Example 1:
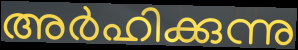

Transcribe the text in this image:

അർഹിക്കുന്നു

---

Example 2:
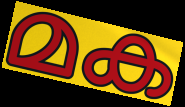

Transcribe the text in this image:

മക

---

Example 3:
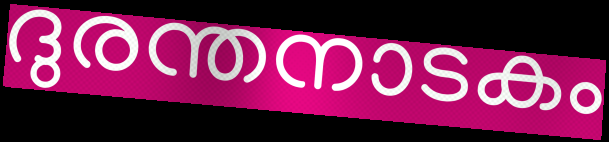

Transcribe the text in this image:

ദുരന്തനാടകം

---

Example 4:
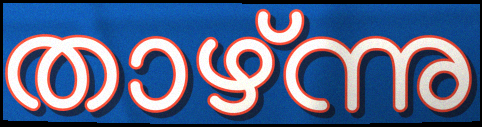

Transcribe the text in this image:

താഴ്ന്നു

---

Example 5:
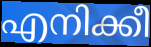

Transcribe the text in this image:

എനിക്കീ